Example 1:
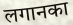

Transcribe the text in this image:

लगानका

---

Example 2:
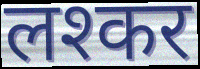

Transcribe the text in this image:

लश्कर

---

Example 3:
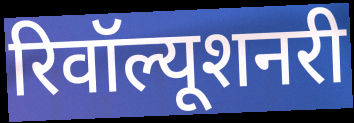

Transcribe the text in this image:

रिवॉल्यूशनरी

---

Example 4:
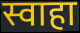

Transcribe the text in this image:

स्वाहा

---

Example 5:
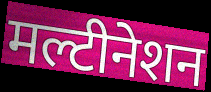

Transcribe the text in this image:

मल्टीनेशन